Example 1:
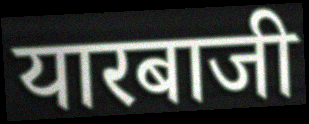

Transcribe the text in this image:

यारबाजी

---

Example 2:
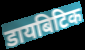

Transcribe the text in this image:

डायबिटिक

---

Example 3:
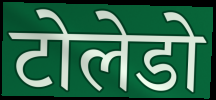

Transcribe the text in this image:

टोलेडो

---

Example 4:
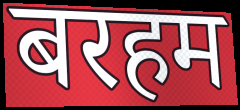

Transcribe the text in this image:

बरहम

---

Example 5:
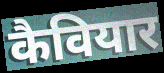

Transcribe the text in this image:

कैवियार